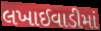
લખાઈવાડીમાં